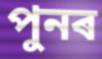
পুনৰ